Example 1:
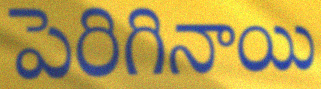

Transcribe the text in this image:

పెరిగినాయి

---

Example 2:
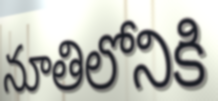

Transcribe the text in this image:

నూతిలోనికి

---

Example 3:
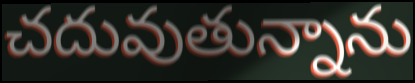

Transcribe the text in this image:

చదువుతున్నాను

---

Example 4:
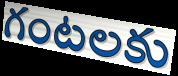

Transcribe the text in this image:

గంటలకు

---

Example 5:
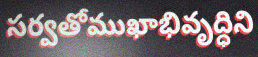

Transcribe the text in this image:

సర్వతోముఖాభివృద్ధిని